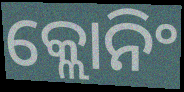
କ୍ଲୋନିଂ